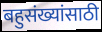
बहुसंख्यांसाठी